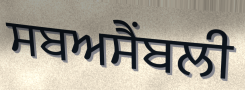
ਸਬਅਸੈਂਬਲੀ